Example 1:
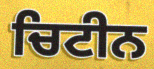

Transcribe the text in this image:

ਚਿਟੀਨ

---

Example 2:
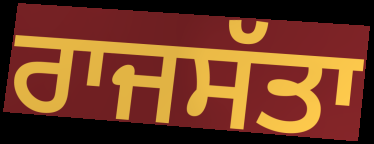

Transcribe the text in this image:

ਰਾਜਸੱਤਾ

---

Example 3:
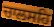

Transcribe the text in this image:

ਚਾਲਸਹਿ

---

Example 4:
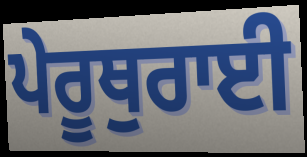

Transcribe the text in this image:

ਪੇਰੂਥੁਰਾਈ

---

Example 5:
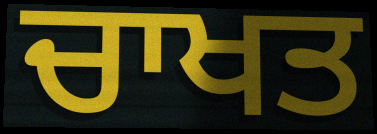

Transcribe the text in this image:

ਚਾਖਤ